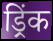
ड्रिंक